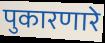
पुकारणारे